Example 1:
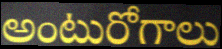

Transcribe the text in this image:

అంటురోగాలు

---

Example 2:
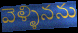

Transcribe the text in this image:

వెళ్ళినను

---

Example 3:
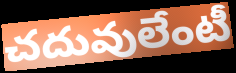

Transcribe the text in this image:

చదువులేంటీ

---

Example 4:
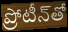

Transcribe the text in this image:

ప్రోటీన్‌తో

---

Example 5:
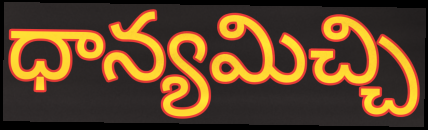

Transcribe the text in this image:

ధాన్యమిచ్చి